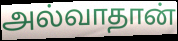
அல்வாதான்